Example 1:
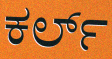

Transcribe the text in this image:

ಕರ್ಲ್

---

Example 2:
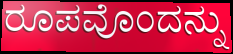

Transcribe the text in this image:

ರೂಪವೊಂದನ್ನು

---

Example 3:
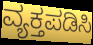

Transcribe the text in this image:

ವ್ಯಕ್ತಪಡಿಸಿ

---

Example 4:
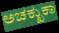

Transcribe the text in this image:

ಅಚಕ್ಖುಕಾ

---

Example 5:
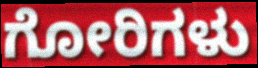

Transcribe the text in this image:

ಗೋರಿಗಳು